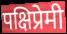
पक्षिप्रेमी